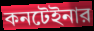
কনটেইনার